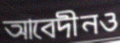
আবেদীনও